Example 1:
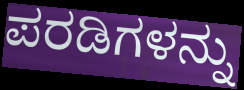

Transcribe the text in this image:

ಪರಡಿಗಳನ್ನು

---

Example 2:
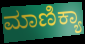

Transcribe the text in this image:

ಮಾಣಿಕ್ಯಾ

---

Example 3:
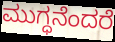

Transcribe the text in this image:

ಮುಗ್ಧನೆಂದರೆ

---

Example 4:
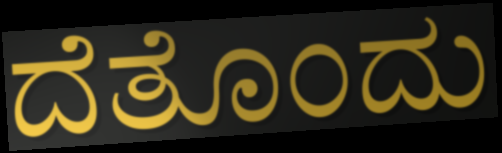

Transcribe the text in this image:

ದೆತೊಂದು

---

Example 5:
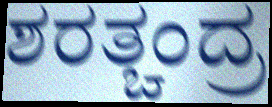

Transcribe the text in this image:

ಶರತ್ಚಂದ್ರ